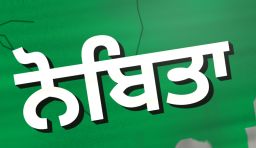
ਨੋਬਿਤਾ